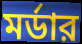
মর্ডার